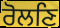
ਰੋਲਣਿ